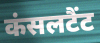
कंसलटैंट